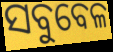
ସବୁବେଳ